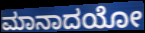
ಮಾನಾದಯೋ